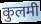
कुलमी